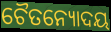
ଚୈତନ୍ୟୋଦୟ